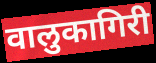
वालुकागिरी